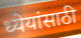
ध्येयांसाठी